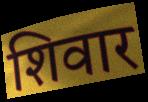
शिवार